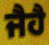
ਜੈਹੈ